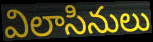
విలాసినులు